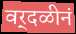
वर्दळीनं